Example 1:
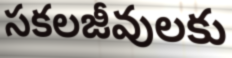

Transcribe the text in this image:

సకలజీవులకు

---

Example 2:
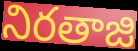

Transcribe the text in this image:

నిరతాజి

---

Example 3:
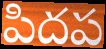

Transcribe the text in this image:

పిదప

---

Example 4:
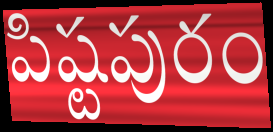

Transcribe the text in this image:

పిష్టపురం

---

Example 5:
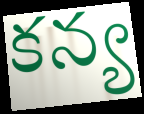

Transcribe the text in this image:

కన్య